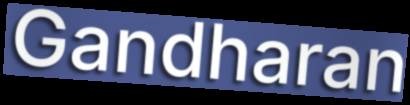
Gandharan